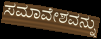
ಸಮಾವೇಶವನ್ನು